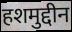
हशमुद्दीन